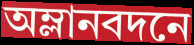
অম্লানবদনে